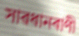
সাৱধানবাণী